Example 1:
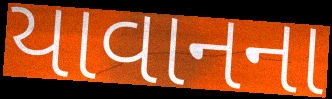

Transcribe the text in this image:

યાવાનના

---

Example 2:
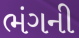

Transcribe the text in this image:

ભંગની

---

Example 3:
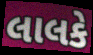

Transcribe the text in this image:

લાલકે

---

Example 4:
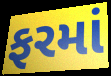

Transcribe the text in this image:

ફરમાં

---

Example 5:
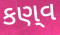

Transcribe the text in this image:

કણ્‌વ